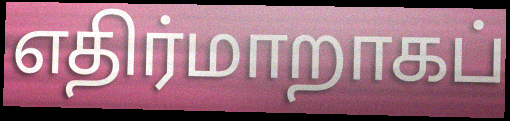
எதிர்மாறாகப்